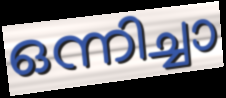
ഒന്നിച്ചാ